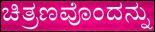
ಚಿತ್ರಣವೊಂದನ್ನು